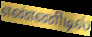
எண்ணிடில்